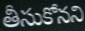
తీసుకోనని